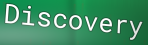
Discovery